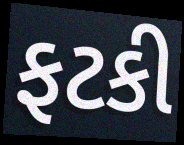
ફટકી